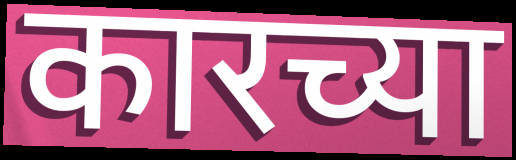
कारच्या